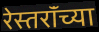
रेस्तरॉंच्या